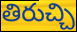
తిరుచ్చి